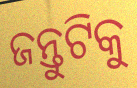
ଜନ୍ତୁଟିକୁ